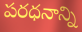
పరధనాన్ని